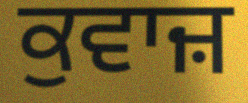
ਕੁਵਾਜ਼